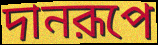
দানরূপে